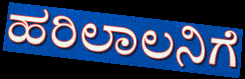
ಹರಿಲಾಲನಿಗೆ